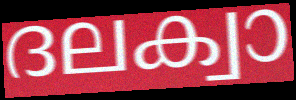
ദലക്വാ